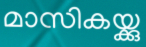
മാസികയ്ക്കു